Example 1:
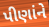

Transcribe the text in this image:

પીણાંને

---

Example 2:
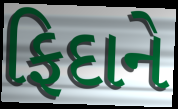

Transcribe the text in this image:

ફિદાને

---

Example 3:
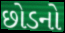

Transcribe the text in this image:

છોડનો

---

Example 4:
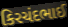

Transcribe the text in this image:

કિરચંદભાઈ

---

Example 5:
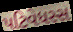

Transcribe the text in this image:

પટિવેધસ્સ